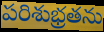
పరిశుభ్రతను